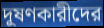
দূষণকারীদের